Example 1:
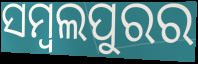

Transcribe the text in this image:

ସମ୍ୱଲପୁରର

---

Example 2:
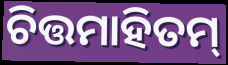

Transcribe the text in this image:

ଚିତ୍ତମାହିତମ୍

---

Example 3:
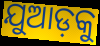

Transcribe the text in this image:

ଯୁଆଡ଼କୁ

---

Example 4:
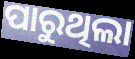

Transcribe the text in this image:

ପାରୁଥିଲା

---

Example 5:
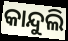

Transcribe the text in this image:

କାନ୍ଦୁଲି